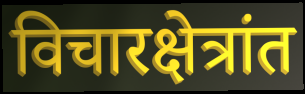
विचारक्षेत्रांत